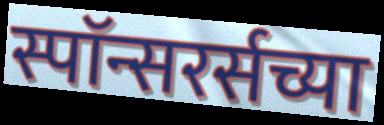
स्पॉन्सरर्सच्या